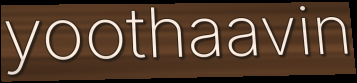
yoothaavin